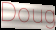
Doug